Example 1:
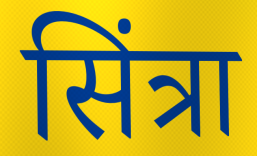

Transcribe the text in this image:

सिंत्रा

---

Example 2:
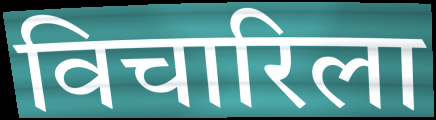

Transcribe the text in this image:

विचारिला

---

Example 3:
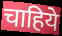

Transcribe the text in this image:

चाहिये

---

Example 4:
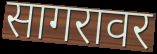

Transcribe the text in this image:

सागरावर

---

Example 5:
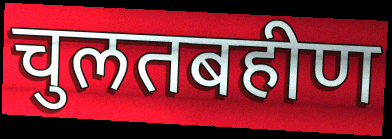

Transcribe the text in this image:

चुलतबहीण